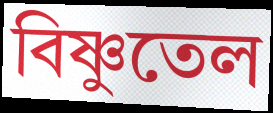
বিষ্ণুতেল